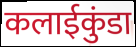
कलाईकुंडा